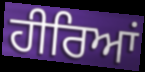
ਹੀਰਿਆਂ